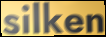
silken